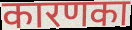
कारणका